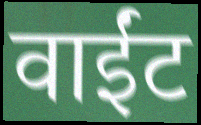
वाईंट